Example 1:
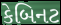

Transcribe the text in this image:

કેબિનટ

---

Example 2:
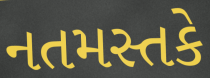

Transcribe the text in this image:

નતમસ્તકે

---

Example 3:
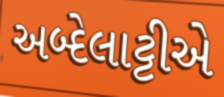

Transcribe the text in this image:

અબ્દેલાટ્ટીએ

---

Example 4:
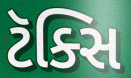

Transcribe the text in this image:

ટૅક્સિ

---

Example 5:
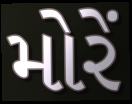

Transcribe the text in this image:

મોરેં